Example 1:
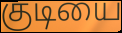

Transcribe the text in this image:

குடியை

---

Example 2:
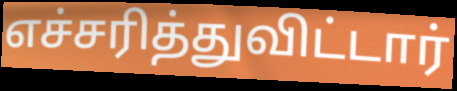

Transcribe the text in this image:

எச்சரித்துவிட்டார்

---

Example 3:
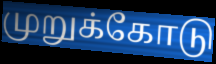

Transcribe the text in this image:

முறுக்கோடு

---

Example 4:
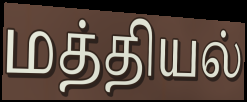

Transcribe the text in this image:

மத்தியல்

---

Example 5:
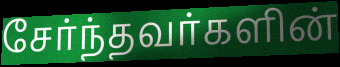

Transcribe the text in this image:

சேர்ந்தவர்களின்